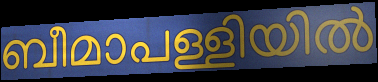
ബീമാപള്ളിയിൽ